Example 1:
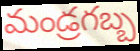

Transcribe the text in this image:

మండ్రగబ్బ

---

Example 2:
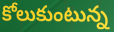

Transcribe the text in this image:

కోలుకుంటున్న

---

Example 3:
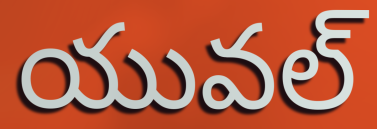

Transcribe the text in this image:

యువల్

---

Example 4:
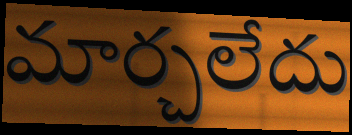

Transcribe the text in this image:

మార్చలేదు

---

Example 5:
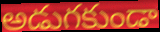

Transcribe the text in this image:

అడుగకుండా